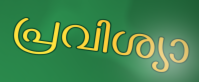
പ്രവിശ്യാ